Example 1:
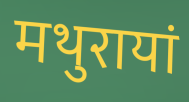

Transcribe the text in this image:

मथुरायां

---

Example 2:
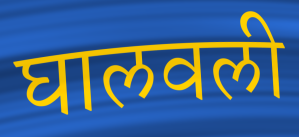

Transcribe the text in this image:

घालवली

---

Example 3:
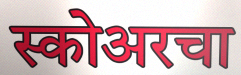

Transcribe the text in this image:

स्कोअरचा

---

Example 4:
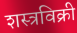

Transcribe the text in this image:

शस्त्रविक्री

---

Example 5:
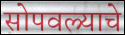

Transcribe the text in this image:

सोपवल्याचे